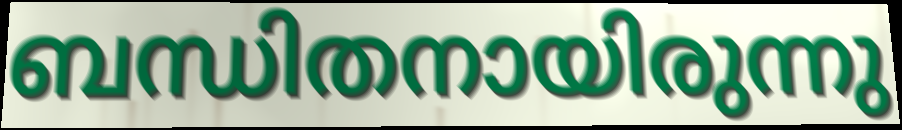
ബന്ധിതനായിരുന്നു